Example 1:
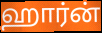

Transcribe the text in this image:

ஹார்ன்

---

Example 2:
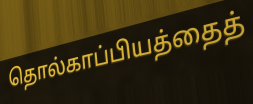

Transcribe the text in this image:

தொல்காப்பியத்தைத்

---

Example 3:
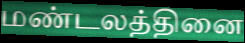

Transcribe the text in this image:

மண்டலத்தினை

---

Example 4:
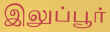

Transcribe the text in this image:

இலுப்பூர்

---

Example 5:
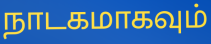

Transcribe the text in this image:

நாடகமாகவும்